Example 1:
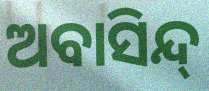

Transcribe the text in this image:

ଅବାସିନ୍ଦ୍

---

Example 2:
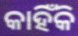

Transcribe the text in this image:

କାହିଁକି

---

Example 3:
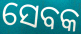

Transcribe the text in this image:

ସେବକ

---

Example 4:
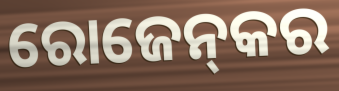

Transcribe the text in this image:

ରୋଜେନ୍‌କର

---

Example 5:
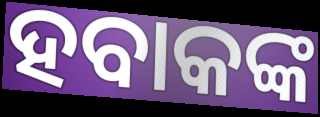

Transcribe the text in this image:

ହବାକଙ୍କ